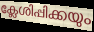
ക്ലേശിപ്പിക്കയും